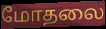
மோதலை